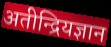
अतीन्द्रियज्ञान